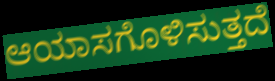
ಆಯಾಸಗೊಳಿಸುತ್ತದೆ